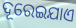
ଦୂରେଇଯାଏ